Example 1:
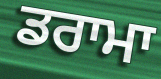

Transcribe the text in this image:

ਡਰਾਮਾ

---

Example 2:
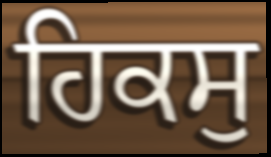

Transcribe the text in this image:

ਹਿਕਸੁ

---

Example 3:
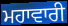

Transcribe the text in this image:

ਮਹਾਵਾਰੀ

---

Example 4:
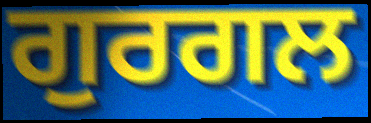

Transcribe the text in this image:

ਗੁਰਗਲ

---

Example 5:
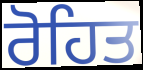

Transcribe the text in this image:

ਰੋਹਿਤ